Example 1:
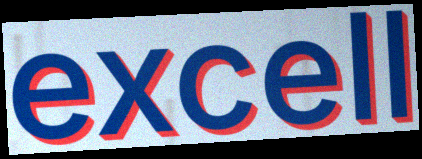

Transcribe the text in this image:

excell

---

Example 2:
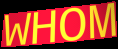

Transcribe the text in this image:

WHOM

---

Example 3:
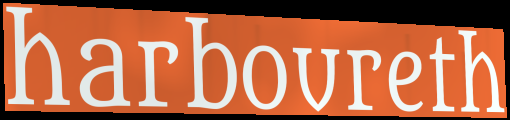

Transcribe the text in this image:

harboureth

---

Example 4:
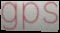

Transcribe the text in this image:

gps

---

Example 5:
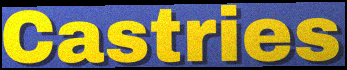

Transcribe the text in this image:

Castries